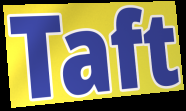
Taft